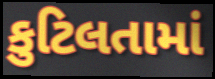
કુટિલતામાં